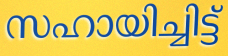
സഹായിച്ചിട്ട്